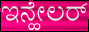
ಇನ್ಹೇಲರ್